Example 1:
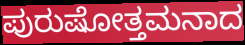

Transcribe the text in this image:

ಪುರುಷೋತ್ತಮನಾದ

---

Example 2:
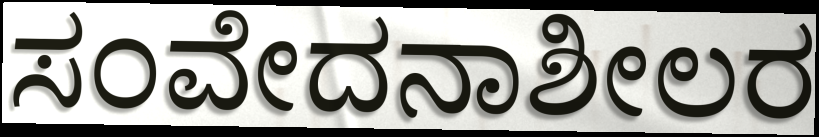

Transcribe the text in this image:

ಸಂವೇದನಾಶೀಲರ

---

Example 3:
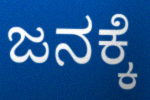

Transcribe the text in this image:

ಜನಕ್ಕೆ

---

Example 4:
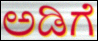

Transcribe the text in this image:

ಅಡಿಗೆ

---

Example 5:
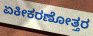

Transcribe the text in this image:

ಏಕೀಕರಣೋತ್ತರ